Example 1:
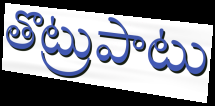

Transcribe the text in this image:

తొట్రుపాటు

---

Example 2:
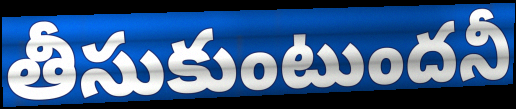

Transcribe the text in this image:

తీసుకుంటుందనీ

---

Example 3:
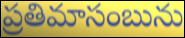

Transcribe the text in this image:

ప్రతిమాసంబును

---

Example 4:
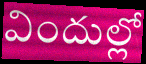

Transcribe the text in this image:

విందుల్లో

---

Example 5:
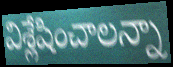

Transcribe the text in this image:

విశ్లేషించాలన్నా